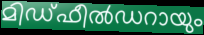
മിഡ്ഫീൽഡറായും